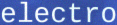
electro